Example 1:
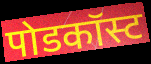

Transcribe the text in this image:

पोडकॉस्ट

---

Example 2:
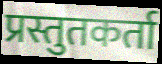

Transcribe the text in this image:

प्रस्तुतकर्ता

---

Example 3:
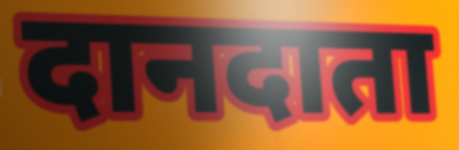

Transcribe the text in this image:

दानदाता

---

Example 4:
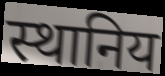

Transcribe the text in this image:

स्थानिय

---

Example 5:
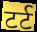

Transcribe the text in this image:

टर्ट